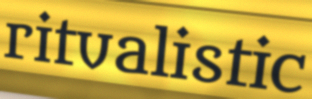
ritualistic